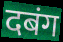
दबंग